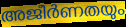
അജീർണതയും